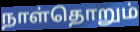
நாள்தொறும்